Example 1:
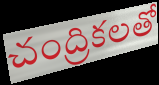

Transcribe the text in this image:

చంద్రికలతో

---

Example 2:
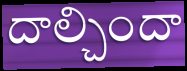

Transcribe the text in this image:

దాల్చిందా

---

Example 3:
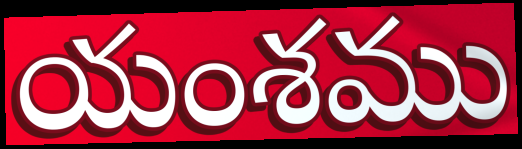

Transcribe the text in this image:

యంశము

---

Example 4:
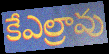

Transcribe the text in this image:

కేఎల్రావు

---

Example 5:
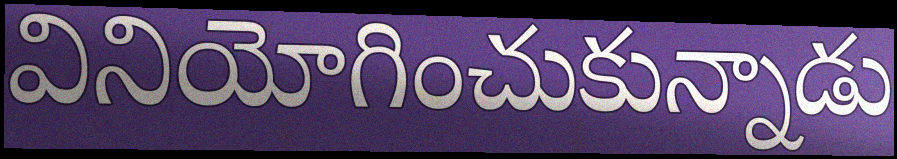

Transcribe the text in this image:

వినియోగించుకున్నాడు